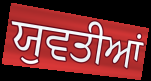
ਯੁਵਤੀਆਂ